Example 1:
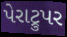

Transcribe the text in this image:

પેરાટ્રુપર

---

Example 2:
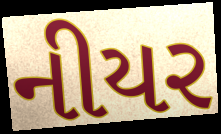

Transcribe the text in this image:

નીયર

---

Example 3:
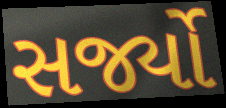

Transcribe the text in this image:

સર્જ્યો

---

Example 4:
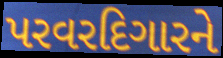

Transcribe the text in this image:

પરવરદિગારને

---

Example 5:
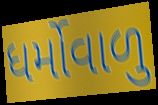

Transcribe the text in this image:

ધર્મોવાળુ